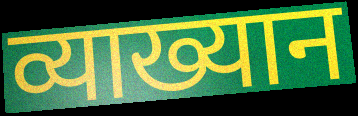
व्‍याख्‍यान